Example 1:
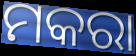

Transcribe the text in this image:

ମକରା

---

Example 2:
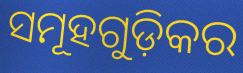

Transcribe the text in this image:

ସମୂହଗୁଡ଼ିକର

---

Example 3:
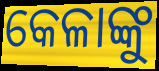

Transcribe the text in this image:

କେଳାଙ୍କୁ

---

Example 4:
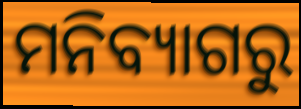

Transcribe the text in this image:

ମନିବ୍ୟାଗରୁ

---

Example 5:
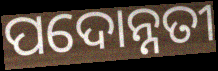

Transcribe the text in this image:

ପଦୋନ୍ନତୀ